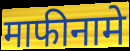
माफीनामे